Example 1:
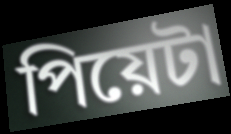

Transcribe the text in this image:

পিয়েটা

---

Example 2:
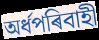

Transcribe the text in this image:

অৰ্ধপৰিবাহী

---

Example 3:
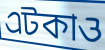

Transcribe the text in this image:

এটকাও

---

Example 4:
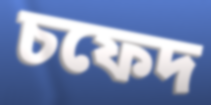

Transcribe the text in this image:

চফেদ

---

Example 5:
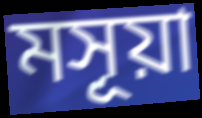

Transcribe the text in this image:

মসূয়া